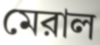
মেরাল